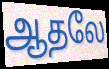
ஆதலே